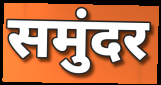
समुंदर